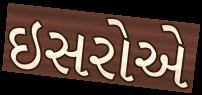
ઇસરોએ